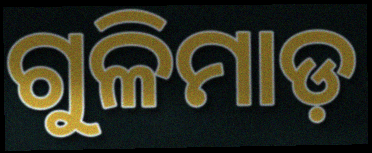
ଗୁଳିମାଡ଼